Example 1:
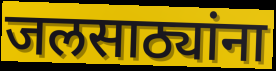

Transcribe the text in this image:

जलसाठ्यांना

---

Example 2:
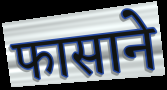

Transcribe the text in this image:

फासाने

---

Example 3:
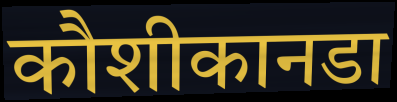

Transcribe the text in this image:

कौशीकानडा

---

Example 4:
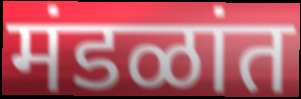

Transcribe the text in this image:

मंडळांत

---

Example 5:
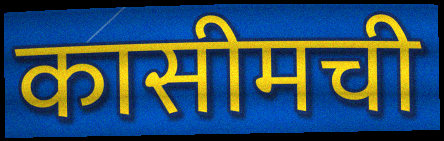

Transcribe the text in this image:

कासीमची